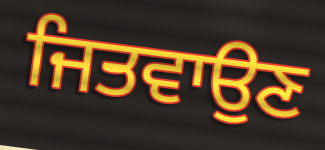
ਜਿਤਵਾਉਣ